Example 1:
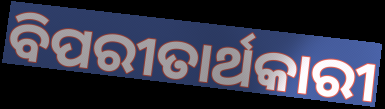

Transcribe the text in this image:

ବିପରୀତାର୍ଥକାରୀ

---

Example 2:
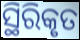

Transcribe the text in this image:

ସ୍ଥିରିକୃତ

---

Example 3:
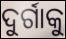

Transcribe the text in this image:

ଦୁର୍ଗାକୁ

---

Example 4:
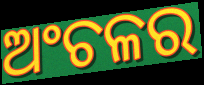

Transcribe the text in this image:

ଅଂଚଳର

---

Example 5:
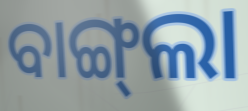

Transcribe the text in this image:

ବାଙ୍ଗ୍‍ଲା